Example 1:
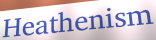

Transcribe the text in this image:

Heathenism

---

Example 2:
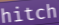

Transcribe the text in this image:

hitch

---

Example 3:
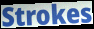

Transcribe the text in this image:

Strokes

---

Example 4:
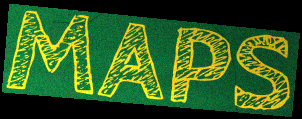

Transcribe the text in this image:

MAPS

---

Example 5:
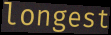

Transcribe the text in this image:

longest